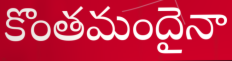
కొంతమందైనా